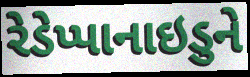
રેડેપ્પાનાઇડુને